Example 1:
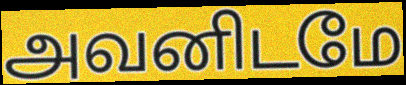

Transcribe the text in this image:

அவனிடமே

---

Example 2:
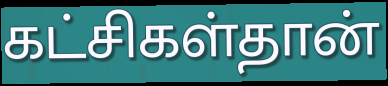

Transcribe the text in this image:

கட்சிகள்தான்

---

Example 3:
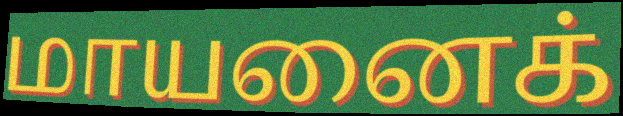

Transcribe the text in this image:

மாயனைக்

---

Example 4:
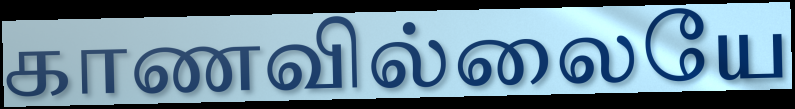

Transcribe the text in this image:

காணவில்லையே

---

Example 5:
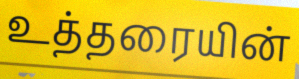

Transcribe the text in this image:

உத்தரையின்